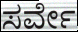
ಸರ್ವೇ